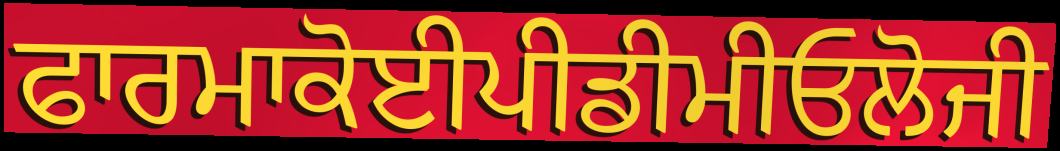
ਫਾਰਮਾਕੋਈਪੀਡੀਮੀਓਲੋਜੀ